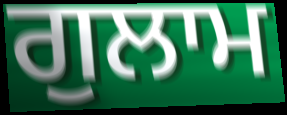
ਗੁਲਾਮ